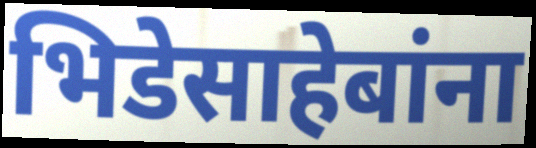
भिडेसाहेबांना